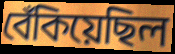
বেঁকিয়েছিল